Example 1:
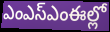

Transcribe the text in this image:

ఎంఎస్ఎంఈల్లో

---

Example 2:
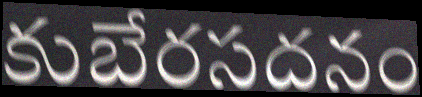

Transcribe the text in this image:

కుబేరసదనం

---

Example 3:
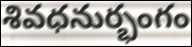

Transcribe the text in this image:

శివధనుర్భంగం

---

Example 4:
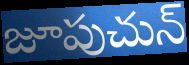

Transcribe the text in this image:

జూపుచున్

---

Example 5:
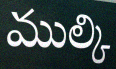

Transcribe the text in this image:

ముల్కి